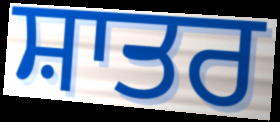
ਸ਼ਾਤਰ